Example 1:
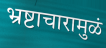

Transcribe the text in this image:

भ्रष्टाचारामुळं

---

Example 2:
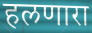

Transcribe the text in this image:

हलणारा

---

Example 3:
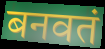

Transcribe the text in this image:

बनवतं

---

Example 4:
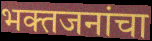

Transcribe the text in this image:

भक्तजनांचा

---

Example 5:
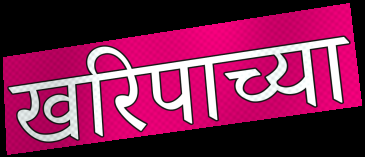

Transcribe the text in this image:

खरिपाच्या